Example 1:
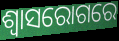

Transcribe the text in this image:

ଶ୍ଵାସରୋଗରେ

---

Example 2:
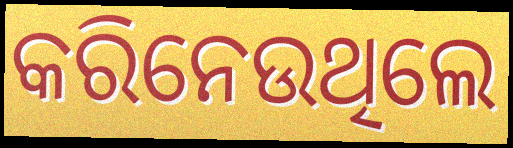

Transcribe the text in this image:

କରିନେଉଥିଲେ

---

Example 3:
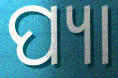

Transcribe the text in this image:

ପ୍ୟା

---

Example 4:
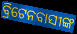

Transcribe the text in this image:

ବ୍ରିଟେନବାସୀଙ୍କ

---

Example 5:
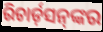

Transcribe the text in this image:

ରିଚାର୍ଡ଼ସନ୍‌ଙ୍କର